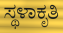
ಸ್ಥಳಾಕೃತಿ